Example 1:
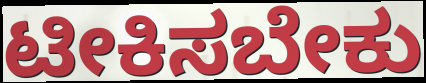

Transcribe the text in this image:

ಟೀಕಿಸಬೇಕು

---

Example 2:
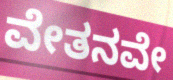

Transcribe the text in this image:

ವೇತನವೇ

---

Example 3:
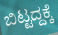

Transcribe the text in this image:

ಬಿಟ್ಟದ್ದಕ್ಕೆ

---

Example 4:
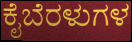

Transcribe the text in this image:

ಕೈಬೆರಳುಗಳ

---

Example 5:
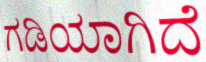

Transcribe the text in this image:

ಗಡಿಯಾಗಿದೆ